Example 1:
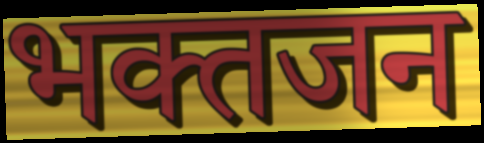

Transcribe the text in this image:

भक्तजन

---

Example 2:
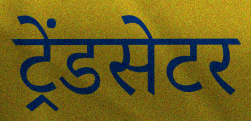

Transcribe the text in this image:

ट्रेंडसेटर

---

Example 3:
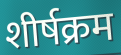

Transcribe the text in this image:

शीर्षक्रम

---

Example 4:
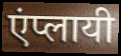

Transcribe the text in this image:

एंप्लायी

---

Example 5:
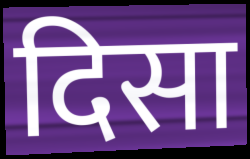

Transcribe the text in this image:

दिसा